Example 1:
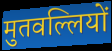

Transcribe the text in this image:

मुतवल्लियों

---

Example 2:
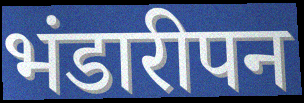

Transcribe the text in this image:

भंडारीपन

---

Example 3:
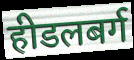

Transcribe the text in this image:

हीडलबर्ग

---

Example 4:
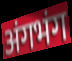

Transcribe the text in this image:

अंगभंग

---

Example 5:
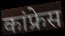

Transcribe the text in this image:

कांफ्रेस